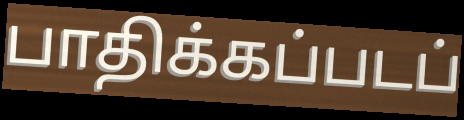
பாதிக்கப்படப்